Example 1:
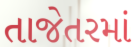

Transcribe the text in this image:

તાજેતરમાં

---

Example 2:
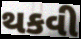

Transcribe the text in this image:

થકવી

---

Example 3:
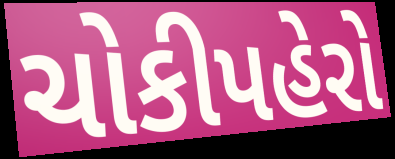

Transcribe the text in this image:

ચોકીપહેરો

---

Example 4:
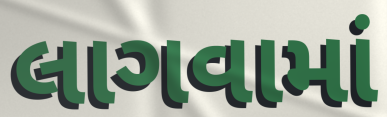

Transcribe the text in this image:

લાગવામાં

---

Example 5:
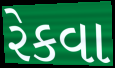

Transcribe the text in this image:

રેકવા